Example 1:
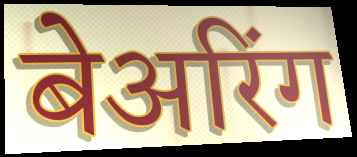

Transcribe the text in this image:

बेअरिंग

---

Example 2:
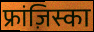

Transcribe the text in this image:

फ्रांज़िस्का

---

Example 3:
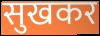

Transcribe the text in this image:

सुखकर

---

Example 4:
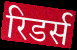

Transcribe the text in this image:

रिडर्स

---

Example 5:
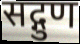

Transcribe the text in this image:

सद्गुण